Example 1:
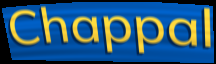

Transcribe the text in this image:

Chappal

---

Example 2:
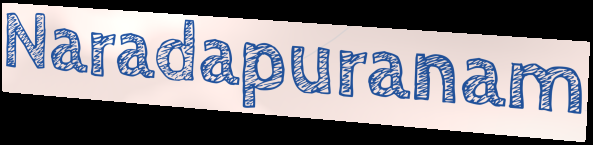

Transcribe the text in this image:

Naradapuranam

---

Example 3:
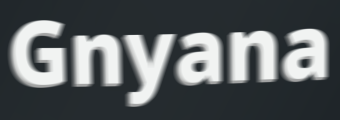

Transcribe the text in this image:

Gnyana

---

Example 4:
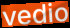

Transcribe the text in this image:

vedio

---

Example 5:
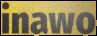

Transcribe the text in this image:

inawo